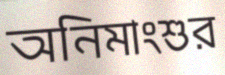
অনিমাংশুর